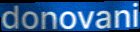
donovani